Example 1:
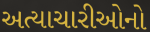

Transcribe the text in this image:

અત્યાચારીઓનો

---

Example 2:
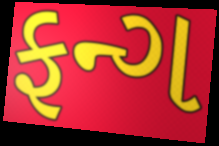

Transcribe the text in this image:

ફન્ગ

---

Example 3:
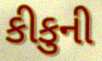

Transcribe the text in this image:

કીકુની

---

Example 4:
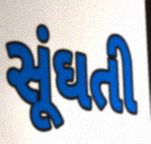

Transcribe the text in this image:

સૂંઘતી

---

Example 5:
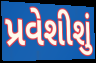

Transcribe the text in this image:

પ્રવેશીશું